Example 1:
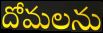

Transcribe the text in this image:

దోమలను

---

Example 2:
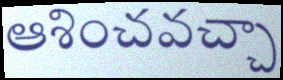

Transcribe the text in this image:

ఆశించవచ్చా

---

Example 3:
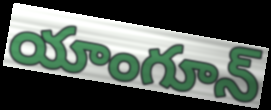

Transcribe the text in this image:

యాంగూన్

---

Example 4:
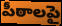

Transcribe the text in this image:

పీఠాలపై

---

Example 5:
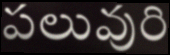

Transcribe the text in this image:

పలువురి